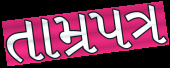
તામ્રપત્ર